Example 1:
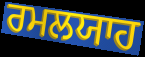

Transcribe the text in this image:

ਰਮਲਯਾਹ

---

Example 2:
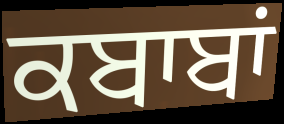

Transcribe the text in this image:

ਕਬਾਬਾਂ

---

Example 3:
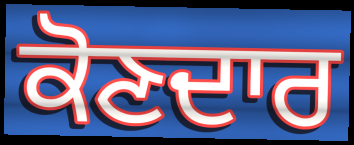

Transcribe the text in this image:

ਕੋਣਦਾਰ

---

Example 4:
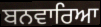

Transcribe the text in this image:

ਬਨਵਾਰਿਆ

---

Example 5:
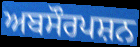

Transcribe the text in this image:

ਅਬਸੌਰਪਸ਼ਨ